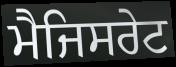
ਮੈਜਿਸਰੇਟ